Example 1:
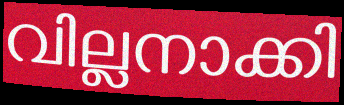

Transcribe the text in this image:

വില്ലനാക്കി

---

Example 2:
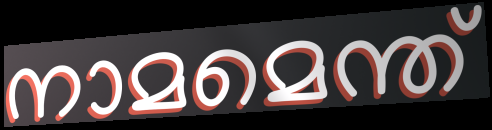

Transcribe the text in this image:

നാമമെന്ത്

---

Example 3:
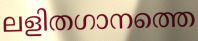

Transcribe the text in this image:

ലളിതഗാനത്തെ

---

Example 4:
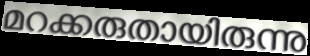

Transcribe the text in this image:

മറക്കരുതായിരുന്നു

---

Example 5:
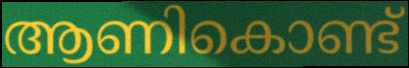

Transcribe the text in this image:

ആണികൊണ്ട്